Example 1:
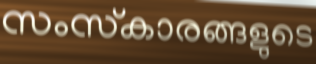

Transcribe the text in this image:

സംസ്‌കാരങ്ങളുടെ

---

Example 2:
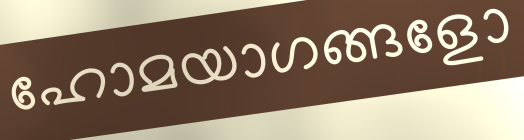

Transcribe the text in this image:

ഹോമയാഗങ്ങളോ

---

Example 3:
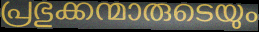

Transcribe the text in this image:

പ്രഭുക്കന്മാരുടെയും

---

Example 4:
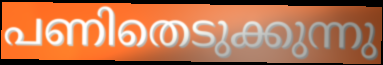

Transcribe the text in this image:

പണിതെടുക്കുന്നു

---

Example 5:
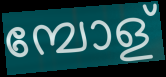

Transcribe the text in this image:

മ്പോള്